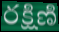
రక్షిణి